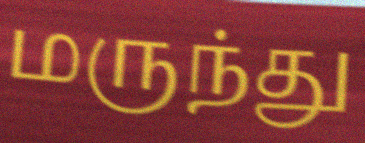
மருந்து